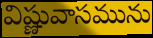
విష్ణువాసమును